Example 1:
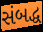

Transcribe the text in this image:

સંબદ્ધ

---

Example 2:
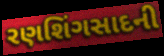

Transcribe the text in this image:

રણશિંગસાદની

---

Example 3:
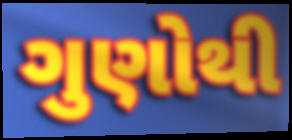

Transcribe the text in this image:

ગુણોથી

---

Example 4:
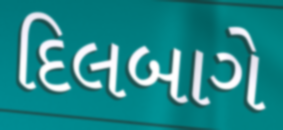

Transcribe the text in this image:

દિલબાગે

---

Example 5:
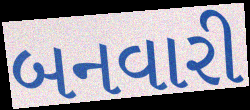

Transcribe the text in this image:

બનવારી